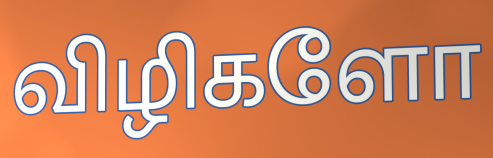
விழிகளோ